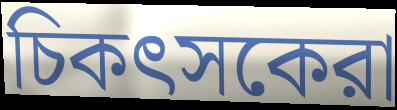
চিকৎসকেরা